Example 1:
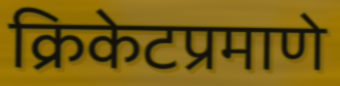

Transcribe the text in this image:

क्रिकेटप्रमाणे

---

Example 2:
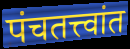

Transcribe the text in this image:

पंचतत्त्वांत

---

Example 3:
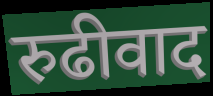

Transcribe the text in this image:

रुढीवाद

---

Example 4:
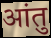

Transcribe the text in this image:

आंतु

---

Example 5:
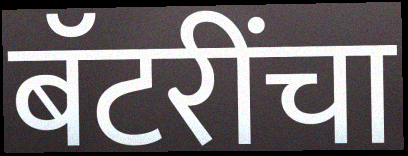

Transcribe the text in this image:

बॅटरींचा